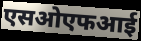
एसओएफआई